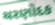
ચરણોદક